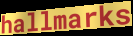
hallmarks